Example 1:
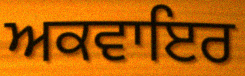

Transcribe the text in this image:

ਅਕਵਾਇਰ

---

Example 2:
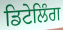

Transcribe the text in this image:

ਡਿਟੇਲਿੰਗ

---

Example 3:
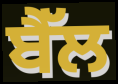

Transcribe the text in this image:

ਬੈੱਲ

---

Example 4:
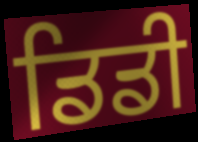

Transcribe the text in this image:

ਡਿਡੀ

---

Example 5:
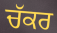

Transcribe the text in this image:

ਚੱਕਰ